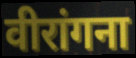
वीरांगना